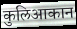
कुलिआकान